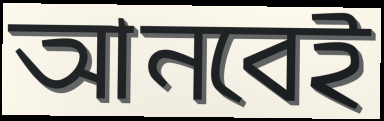
আনবেই